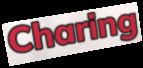
Charing